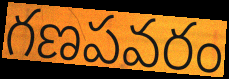
గణపవరం